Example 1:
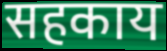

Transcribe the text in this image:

सहकाय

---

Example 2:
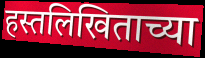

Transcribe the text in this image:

हस्तलिखिताच्या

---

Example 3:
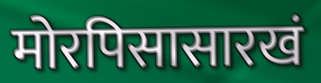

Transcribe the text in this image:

मोरपिसासारखं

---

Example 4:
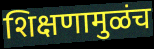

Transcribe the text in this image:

शिक्षणामुळंच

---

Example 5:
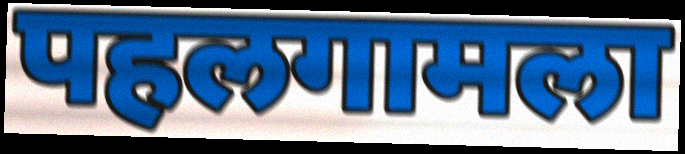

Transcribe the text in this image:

पहलगामला